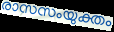
രാസസംയുക്തം